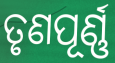
ତୃଣପୂର୍ଣ୍ଣ